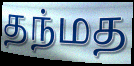
தந்மத